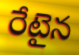
రేటైన